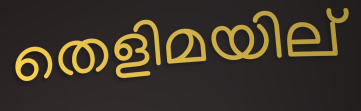
തെളിമയില്